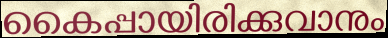
കൈപ്പായിരിക്കുവാനും